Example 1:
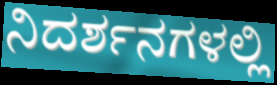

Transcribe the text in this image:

ನಿದರ್ಶನಗಳಲ್ಲಿ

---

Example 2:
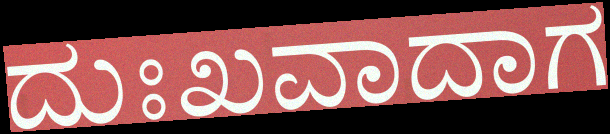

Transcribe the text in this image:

ದುಃಖವಾದಾಗ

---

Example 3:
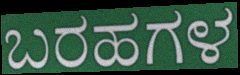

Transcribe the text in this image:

ಬರಹಗಳ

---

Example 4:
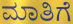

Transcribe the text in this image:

ಮಾತಿಗೆ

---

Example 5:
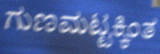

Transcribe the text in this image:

ಗುಣಮಟ್ಟಕ್ಕಿಂತ